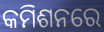
କମିଶନରେ